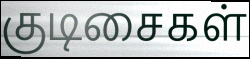
குடிசைகள்